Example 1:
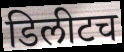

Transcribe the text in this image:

डिलीटच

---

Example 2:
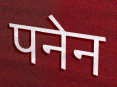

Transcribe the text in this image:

पनेन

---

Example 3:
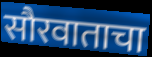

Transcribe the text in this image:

सौरवाताचा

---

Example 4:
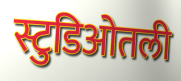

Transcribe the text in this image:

स्टुडिओतली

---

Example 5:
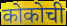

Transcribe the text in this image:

कोकोची